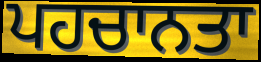
ਪਹਚਾਨਤਾ